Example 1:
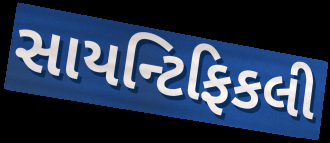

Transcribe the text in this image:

સાયન્ટિફિકલી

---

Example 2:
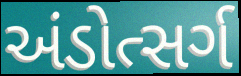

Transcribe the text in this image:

અંડોત્સર્ગ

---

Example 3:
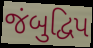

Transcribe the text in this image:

જંબુદ્વિપ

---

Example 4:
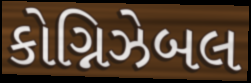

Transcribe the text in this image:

કોગ્નિઝેબલ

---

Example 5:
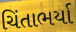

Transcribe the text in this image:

ચિંતાભર્યા